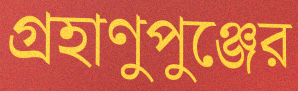
গ্রহাণুপুঞ্জের